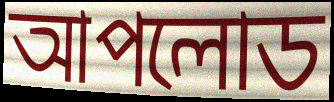
আপলোড